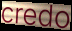
credo